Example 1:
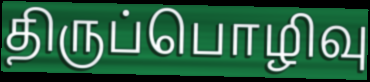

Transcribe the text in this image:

திருப்பொழிவு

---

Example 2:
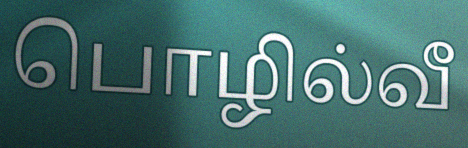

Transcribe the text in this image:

பொழில்வீ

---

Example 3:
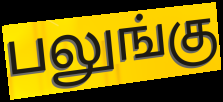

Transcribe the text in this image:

பலுங்கு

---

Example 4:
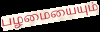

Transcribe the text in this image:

பழமையையும்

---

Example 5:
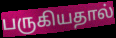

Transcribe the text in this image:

பருகியதால்